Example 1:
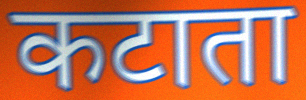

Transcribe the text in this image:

कटाता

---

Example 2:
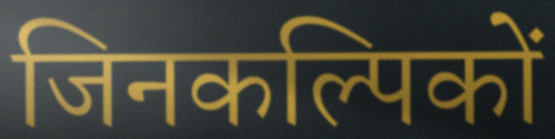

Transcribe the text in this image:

जिनकल्पिकों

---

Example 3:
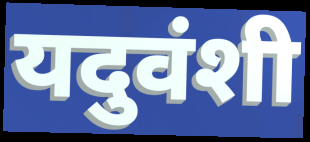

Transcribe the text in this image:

यदुवंशी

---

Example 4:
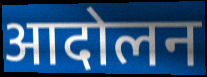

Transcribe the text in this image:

आदोलन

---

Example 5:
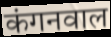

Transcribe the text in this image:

कंगनवाल